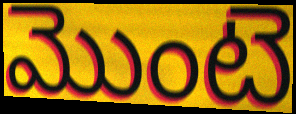
మొంటె